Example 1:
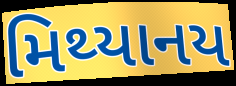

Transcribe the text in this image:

મિથ્યાનય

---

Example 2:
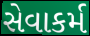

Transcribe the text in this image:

સેવાકર્મ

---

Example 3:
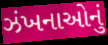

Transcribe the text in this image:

ઝંખનાઓનું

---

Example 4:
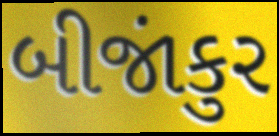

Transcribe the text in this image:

બીજાંકુર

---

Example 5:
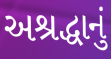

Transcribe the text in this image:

અશ્રદ્ધાનું